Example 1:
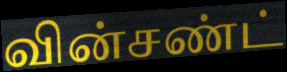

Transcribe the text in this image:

வின்சண்ட்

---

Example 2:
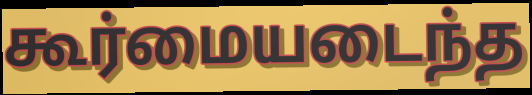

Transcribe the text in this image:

கூர்மையடைந்த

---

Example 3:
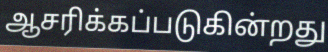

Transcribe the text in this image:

ஆசரிக்கப்படுகின்றது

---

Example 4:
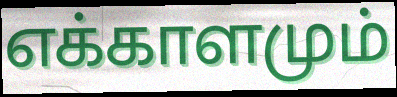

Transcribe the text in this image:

எக்காளமும்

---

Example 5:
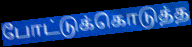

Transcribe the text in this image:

போட்டுக்கொடுத்த